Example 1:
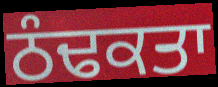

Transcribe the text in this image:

ਠੰਢਕਤਾ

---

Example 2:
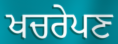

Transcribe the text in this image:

ਖਚਰੇਪਣ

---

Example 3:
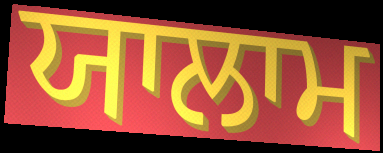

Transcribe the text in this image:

ਯਾਲਾਮ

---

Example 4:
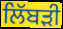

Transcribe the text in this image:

ਲਿੱਬੜੀ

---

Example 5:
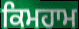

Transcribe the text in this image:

ਕਿਮਹਾਮ